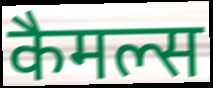
कैमल्स